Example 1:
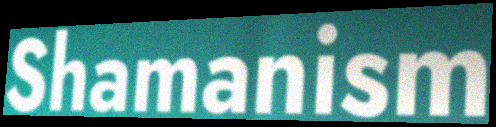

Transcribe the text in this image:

Shamanism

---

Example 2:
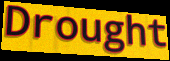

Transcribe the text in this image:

Drought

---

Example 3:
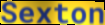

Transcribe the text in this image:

Sexton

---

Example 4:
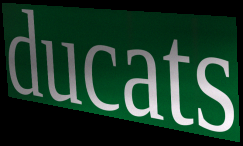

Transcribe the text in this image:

ducats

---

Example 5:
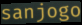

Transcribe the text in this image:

sanjogo